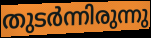
തുടർന്നിരുന്നു